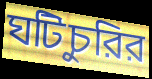
ঘটিচুরির